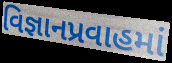
વિજ્ઞાનપ્રવાહમાં